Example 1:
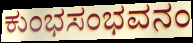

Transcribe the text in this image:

ಕುಂಭಸಂಭವನಂ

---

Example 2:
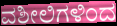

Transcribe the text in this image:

ವಶೀಲಿಗಳಿಂದ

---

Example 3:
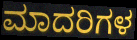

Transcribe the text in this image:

ಮಾದರಿಗಳ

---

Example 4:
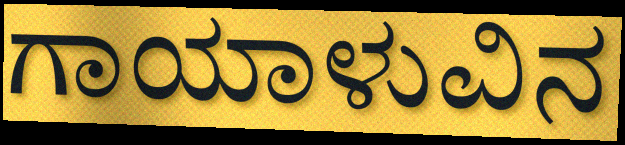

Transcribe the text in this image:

ಗಾಯಾಳುವಿನ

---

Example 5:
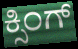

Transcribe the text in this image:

ಕ್ಸಿಂಗ್